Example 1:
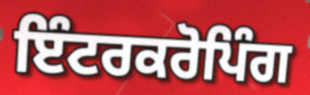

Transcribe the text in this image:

ਇੰਟਰਕਰੋਪਿੰਗ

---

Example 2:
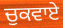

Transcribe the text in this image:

ਚੁਕਵਾਏ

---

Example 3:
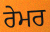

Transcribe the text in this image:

ਰੇਮਰ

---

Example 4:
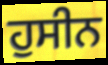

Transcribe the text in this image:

ਹੁਸੀਨ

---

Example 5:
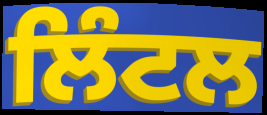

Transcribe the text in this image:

ਲਿੰਟਲ